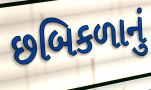
છબિકળાનું